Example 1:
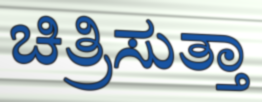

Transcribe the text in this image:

ಚಿತ್ರಿಸುತ್ತಾ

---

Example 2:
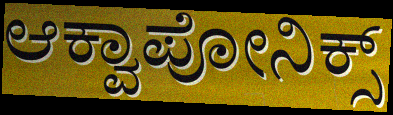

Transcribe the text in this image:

ಆಕ್ವಾಪೋನಿಕ್ಸ್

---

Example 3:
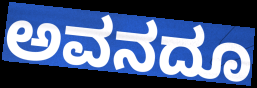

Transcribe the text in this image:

ಅವನದೂ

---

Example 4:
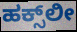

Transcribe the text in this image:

ಹಕ್ಸ್‌ಲೀ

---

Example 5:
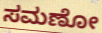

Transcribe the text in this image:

ಸಮಣೋ